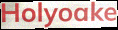
Holyoake